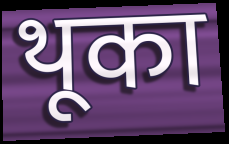
थूका